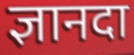
ज्ञानदा